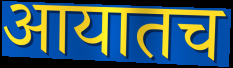
आयातच